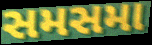
સમસમા